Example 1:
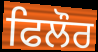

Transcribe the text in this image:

ਫਿਲੌਰ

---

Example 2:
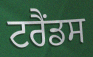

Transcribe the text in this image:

ਟਰੈਂਡਸ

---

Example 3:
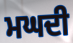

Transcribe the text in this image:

ਮਘਦੀ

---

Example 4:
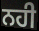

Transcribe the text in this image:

ਨਹੀ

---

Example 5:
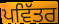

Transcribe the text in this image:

ਪਵਿੱਤਰ